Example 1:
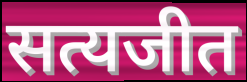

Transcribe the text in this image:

सत्यजीत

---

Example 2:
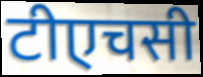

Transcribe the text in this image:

टीएचसी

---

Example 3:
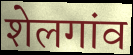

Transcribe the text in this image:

शेलगांव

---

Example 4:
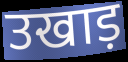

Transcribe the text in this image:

उखाड़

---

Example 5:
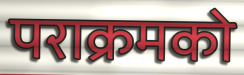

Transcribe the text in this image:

पराक्रमको